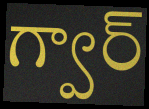
గ్వార్